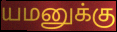
யமனுக்கு